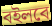
বইলবে